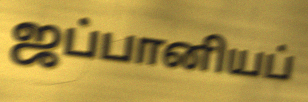
ஜப்பானியப்